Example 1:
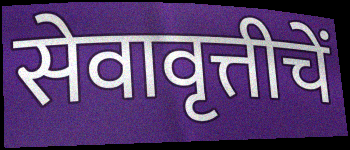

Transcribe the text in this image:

सेवावृत्तीचें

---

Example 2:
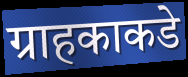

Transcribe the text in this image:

ग्राहकाकडे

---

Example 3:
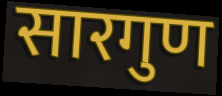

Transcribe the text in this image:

सारगुण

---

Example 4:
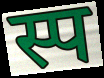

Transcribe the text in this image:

स्प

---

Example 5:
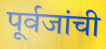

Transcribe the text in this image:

पूर्वजांची